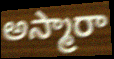
అస్మారా